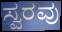
ಸ್ವರವು